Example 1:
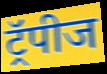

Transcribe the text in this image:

ट्रॅपीज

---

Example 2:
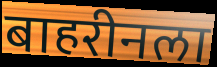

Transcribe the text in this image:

बाहरीनला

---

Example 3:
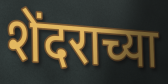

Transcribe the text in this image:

शेंदराच्या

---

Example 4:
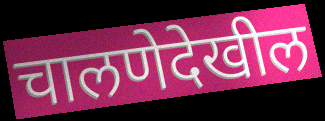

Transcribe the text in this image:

चालणेदेखील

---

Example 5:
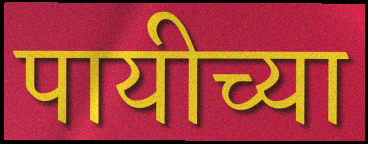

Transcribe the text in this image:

पायीच्या